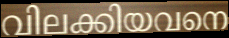
വിലക്കിയവനെ